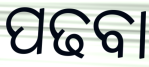
ପଢବା